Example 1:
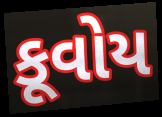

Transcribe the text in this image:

કૂવોય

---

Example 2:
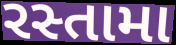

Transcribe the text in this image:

રસ્તામા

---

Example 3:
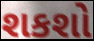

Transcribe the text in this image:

શકશો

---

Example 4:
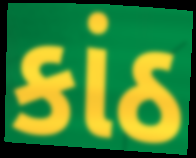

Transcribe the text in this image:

કાંઠ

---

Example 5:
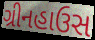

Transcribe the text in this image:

ગ્રીનહાઉસ